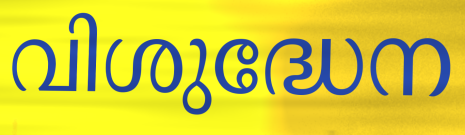
വിശുദ്ധേന